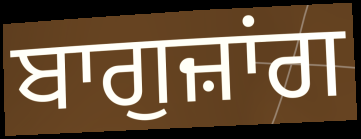
ਬਾਗੁਜ਼ਾਂਗ